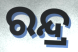
ରନ୍ଦ୍ର